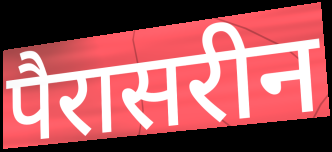
पैरासरीन